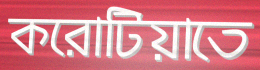
করোটিয়াতে